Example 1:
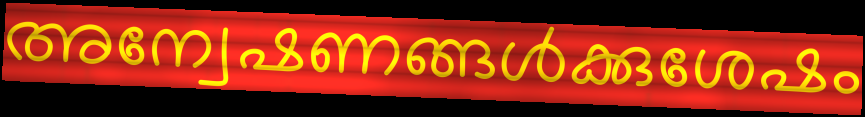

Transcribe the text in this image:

അന്വേഷണങ്ങൾക്കുശേഷം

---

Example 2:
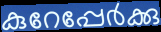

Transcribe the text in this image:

കുറേപ്പേർക്കു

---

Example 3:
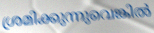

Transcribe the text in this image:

ശ്രമിക്കുന്നുവെങ്കിൽ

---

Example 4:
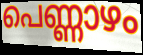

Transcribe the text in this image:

പെണ്ണാഴം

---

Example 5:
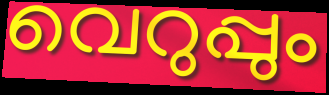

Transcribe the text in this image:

വെറുപ്പും